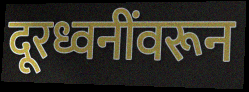
दूरध्वनींवरून